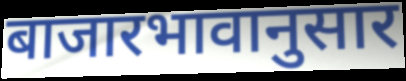
बाजारभावानुसार